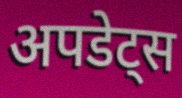
अपडेट्स